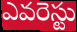
ఎవరెస్టు